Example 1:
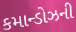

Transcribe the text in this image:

કમાન્ડોઝની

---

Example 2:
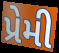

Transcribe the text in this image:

પ્રેમી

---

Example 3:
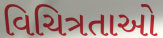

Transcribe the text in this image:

વિચિત્રતાઓ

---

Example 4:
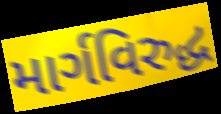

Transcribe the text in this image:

માર્ગવિરુદ્ધ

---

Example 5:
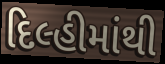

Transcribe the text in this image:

દિલ્હીમાંથી